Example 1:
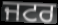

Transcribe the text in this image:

ਜਟਰ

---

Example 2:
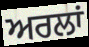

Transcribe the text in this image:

ਅਰਲਾਂ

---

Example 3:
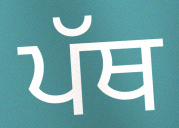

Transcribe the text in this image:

ਪੱਥ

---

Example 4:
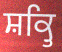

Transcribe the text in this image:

ਸ਼ਕ੍ਤਿ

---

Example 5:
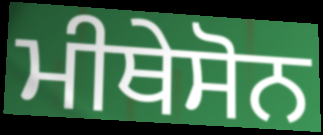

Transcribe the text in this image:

ਮੀਥੇਸੋਨ